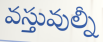
వస్తువుల్నీ